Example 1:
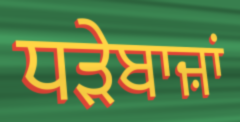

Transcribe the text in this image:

ਧੜੇਬਾਜ਼ਾਂ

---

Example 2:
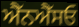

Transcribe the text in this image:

ਐੱਨਐੱਸਓ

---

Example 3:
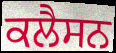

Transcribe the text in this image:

ਕਲੈਸਨ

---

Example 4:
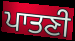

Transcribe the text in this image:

ਪਾਤਣੀ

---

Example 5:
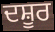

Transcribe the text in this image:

ਦਸ਼ੂਰ